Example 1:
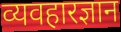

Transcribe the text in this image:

व्यवहारज्ञान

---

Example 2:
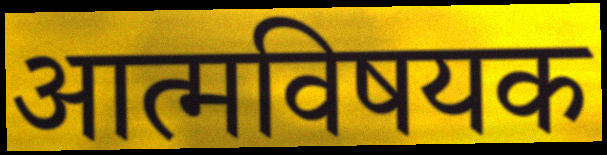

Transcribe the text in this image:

आत्मविषयक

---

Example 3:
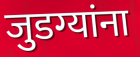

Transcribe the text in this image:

जुडग्यांना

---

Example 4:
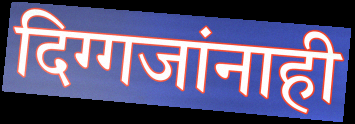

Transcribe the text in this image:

दिग्गजांनाही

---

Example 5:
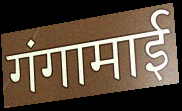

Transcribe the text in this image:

गंगामाई